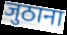
जुठाना